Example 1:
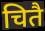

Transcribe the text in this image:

चितै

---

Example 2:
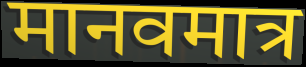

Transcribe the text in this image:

मानवमात्र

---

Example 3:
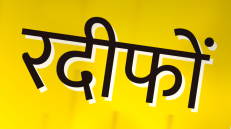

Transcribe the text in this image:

रदीफों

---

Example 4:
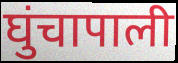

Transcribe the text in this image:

घुंचापाली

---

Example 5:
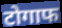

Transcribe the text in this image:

टोगाफ